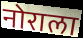
नोराला